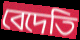
বেদেতি